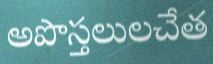
అపొస్తలులచేత